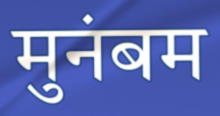
मुनंबम